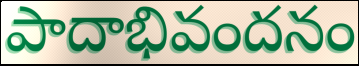
పాదాభివందనం